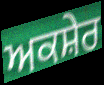
ਅਕਸ਼ੇਰ